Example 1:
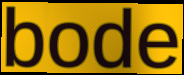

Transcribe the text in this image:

bode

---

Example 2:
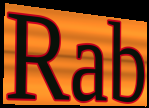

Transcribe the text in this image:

Rab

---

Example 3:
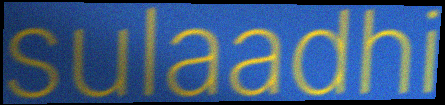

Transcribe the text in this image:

sulaadhi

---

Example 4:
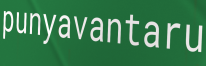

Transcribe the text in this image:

punyavantaru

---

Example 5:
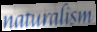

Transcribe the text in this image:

naturalism